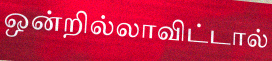
ஒன்றில்லாவிட்டால்